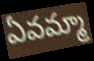
ఏవమ్మా